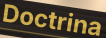
Doctrina